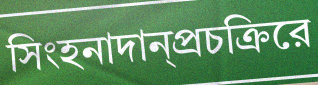
সিংহনাদান্প্রচক্রিরে